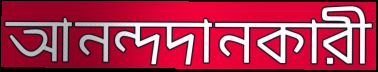
আনন্দদানকারী